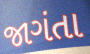
જાગંતા